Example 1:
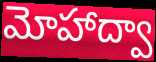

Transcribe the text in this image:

మోహాద్వా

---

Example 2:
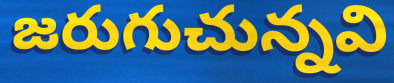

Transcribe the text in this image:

జరుగుచున్నవి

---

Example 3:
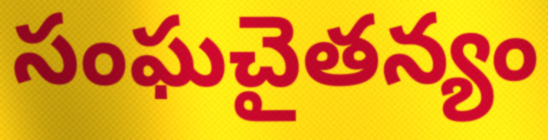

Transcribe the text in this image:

సంఘచైతన్యం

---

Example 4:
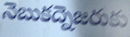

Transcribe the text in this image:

నెబుకద్నెజరుకు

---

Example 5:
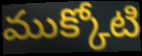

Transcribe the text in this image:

ముక్కోటి